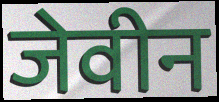
जेवीन